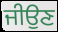
ਜੀਉਣ